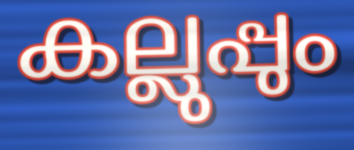
കല്ലുപ്പും